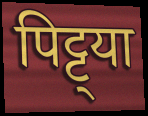
पिट्ट्या